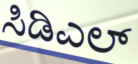
ಸಿಡಿಎಲ್